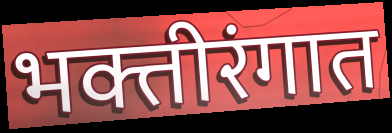
भक्तीरंगात